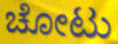
ಚೋಟು